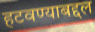
हटवण्याबद्दल